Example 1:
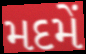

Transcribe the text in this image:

મદમેં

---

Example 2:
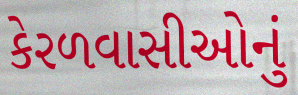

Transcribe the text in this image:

કેરળવાસીઓનું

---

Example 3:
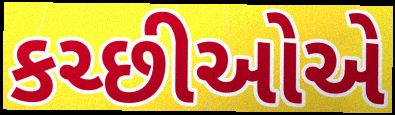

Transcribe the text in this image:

કચ્છીઓએ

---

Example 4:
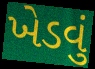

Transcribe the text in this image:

ખેડવું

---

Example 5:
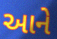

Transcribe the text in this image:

આને